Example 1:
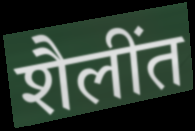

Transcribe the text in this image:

शैलींत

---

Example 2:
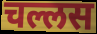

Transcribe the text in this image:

चल्लस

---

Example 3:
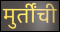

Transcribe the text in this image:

मुर्तींची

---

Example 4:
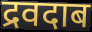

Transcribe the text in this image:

द्रवदाब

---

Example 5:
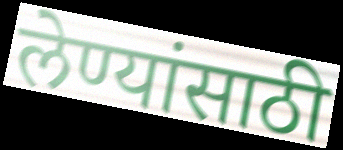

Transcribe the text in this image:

लेण्यांसाठी